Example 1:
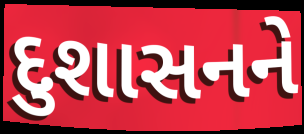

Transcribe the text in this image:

દુશાસનને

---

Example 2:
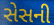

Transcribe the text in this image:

સેસની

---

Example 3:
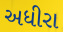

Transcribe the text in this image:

અધીરા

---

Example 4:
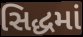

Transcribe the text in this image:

સિદ્ધમાં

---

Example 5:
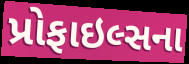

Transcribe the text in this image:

પ્રોફાઇલ્સના